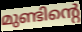
മുണ്ടിന്റെ